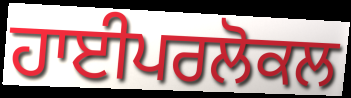
ਹਾਈਪਰਲੋਕਲ